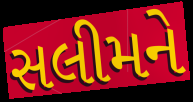
સલીમને